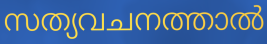
സത്യവചനത്താൽ